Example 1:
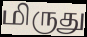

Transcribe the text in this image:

மிருது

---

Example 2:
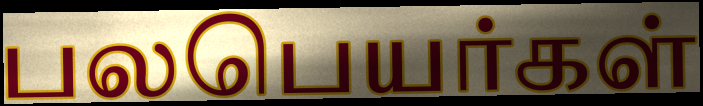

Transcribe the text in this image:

பலபெயர்கள்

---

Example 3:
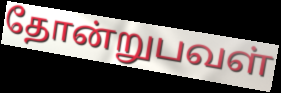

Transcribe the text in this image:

தோன்றுபவள்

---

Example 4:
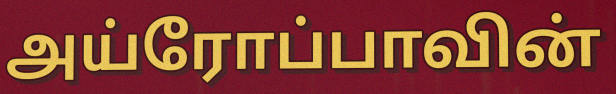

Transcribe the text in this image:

அய்ரோப்பாவின்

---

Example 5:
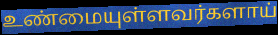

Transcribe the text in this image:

உண்மையுள்ளவர்களாய்